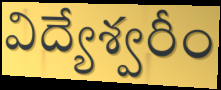
విద్యేశ్వరీం